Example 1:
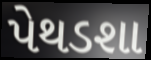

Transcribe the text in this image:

પેથડશા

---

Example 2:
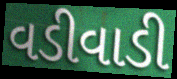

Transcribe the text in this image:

વડીવાડી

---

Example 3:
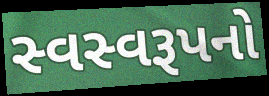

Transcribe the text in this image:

સ્વસ્વરૂપનો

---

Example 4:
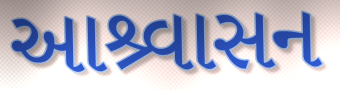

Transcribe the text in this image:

આશ્ર્વાસન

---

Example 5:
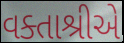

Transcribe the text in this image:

વક્તાશ્રીએ